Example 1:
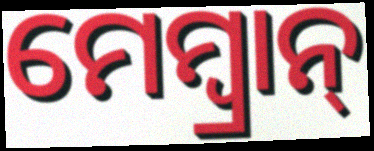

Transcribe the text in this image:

ମେମ୍ବ୍ରାନ୍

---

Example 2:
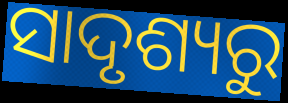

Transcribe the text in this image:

ସାଦୃଶ୍ୟରୁ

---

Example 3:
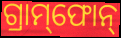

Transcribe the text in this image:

ଗ୍ରାମ୍‌ଫୋନ୍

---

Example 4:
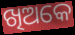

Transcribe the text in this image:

ଖିଅକେ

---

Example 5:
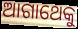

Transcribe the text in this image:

ଆଗାଥେକୁ